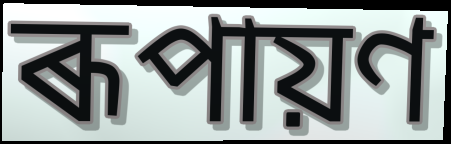
ৰূপায়ণ